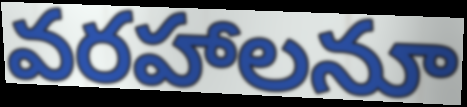
వరహాలనూ